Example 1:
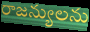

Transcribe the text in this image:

రాజన్యులను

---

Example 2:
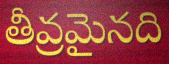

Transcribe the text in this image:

తీవ్రమైనది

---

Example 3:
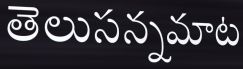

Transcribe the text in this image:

తెలుసన్నమాట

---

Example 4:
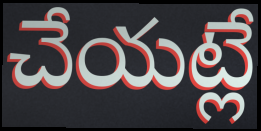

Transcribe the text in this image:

చేయట్లే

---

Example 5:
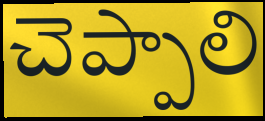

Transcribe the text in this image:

చెప్పాలి